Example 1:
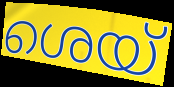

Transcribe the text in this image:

ശെയ്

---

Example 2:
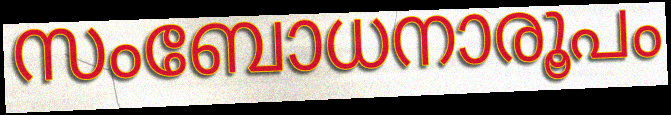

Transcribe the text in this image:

സംബോധനാരൂപം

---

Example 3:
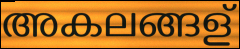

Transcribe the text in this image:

അകലങ്ങള്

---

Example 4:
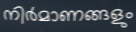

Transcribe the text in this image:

നിർമാണങ്ങളും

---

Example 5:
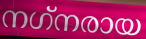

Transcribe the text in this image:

നഗ്‌നരായ